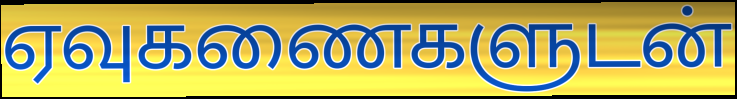
ஏவுகணைகளுடன்